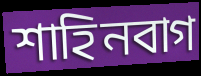
শাহিনবাগ